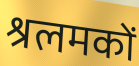
श्रलमकों